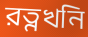
রত্নখনি